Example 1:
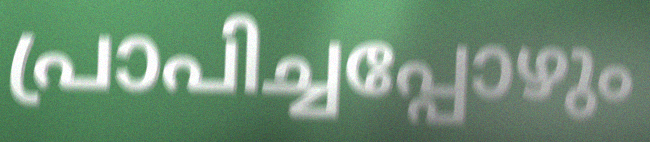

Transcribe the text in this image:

പ്രാപിച്ചപ്പോഴും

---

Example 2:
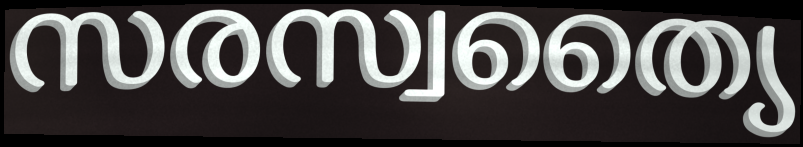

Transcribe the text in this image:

സരസ്വത്യൈ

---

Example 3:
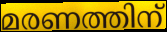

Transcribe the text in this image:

മരണത്തിന്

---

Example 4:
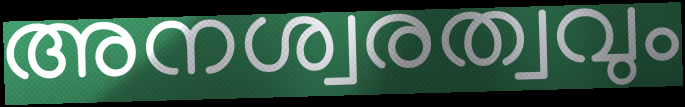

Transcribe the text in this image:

അനശ്വരത്വവും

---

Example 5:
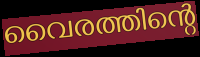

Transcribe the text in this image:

വൈരത്തിന്റെ